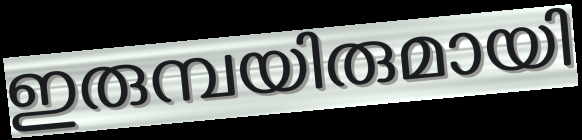
ഇരുമ്പയിരുമായി